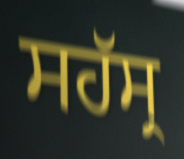
ਸਹੱਸ੍ਰ